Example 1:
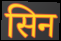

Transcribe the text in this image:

सिन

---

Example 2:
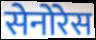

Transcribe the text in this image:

सेनोरेस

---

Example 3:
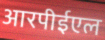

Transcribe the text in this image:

आरपीईएल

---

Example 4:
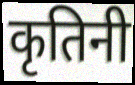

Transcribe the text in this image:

कृतिनी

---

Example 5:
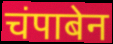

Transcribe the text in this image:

चंपाबेन